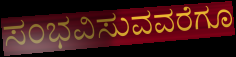
ಸಂಭವಿಸುವವರೆಗೂ